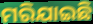
ମରିଯାଇଛି